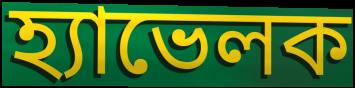
হ্যাভেলক